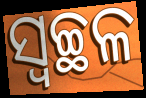
ସ୍ବଚ୍ଛଳ